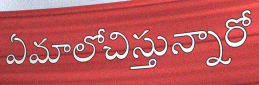
ఏమాలోచిస్తున్నారో